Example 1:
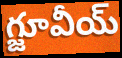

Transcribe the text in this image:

గ్జూవీయ్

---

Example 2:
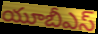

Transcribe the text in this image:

యూబీఎస్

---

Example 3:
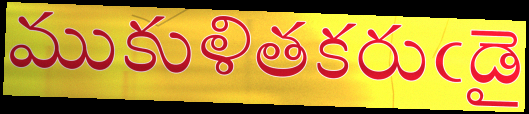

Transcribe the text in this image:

ముకుళితకరుఁడై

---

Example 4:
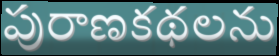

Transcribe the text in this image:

పురాణకథలను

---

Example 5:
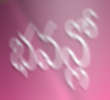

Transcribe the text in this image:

భవన్లో